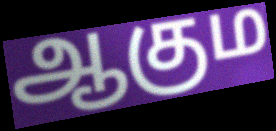
ஆகும